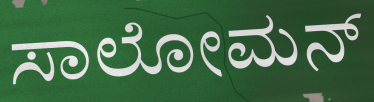
ಸಾಲೋಮನ್